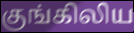
குங்கிலிய